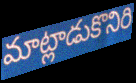
మాట్లాడుకొనిరి